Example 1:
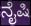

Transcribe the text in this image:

ನೈಷಿ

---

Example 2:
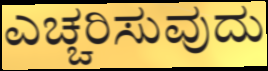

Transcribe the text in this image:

ಎಚ್ಚರಿಸುವುದು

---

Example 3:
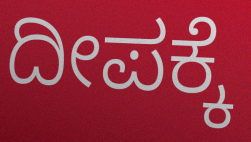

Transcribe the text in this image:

ದೀಪಕ್ಕೆ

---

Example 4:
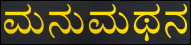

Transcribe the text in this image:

ಮನುಮಥನ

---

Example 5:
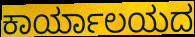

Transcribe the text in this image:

ಕಾರ್ಯಾಲಯದ